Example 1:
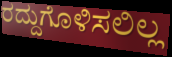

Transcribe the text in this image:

ರದ್ದುಗೊಳಿಸಲಿಲ್ಲ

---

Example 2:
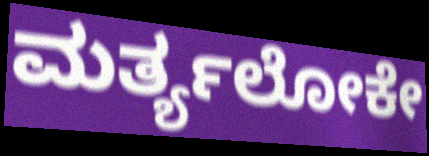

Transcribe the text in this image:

ಮರ್ತ್ಯಲೋಕೇ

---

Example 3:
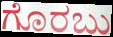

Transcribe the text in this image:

ಗೊರಬು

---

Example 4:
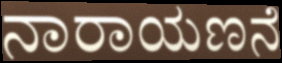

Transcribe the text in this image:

ನಾರಾಯಣನೆ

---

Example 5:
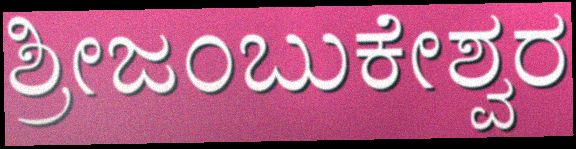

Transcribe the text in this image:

ಶ್ರೀಜಂಬುಕೇಶ್ವರ